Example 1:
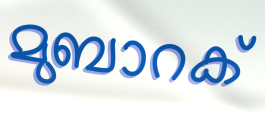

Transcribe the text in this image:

മുബാറക്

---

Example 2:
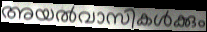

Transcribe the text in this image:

അയൽവാസികൾക്കും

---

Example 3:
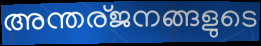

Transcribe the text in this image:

അന്തര്ജനങ്ങളുടെ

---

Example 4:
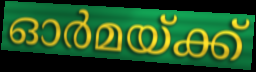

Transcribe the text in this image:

ഓർമയ്ക്ക്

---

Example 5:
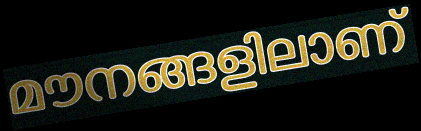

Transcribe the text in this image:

മൗനങ്ങളിലാണ്